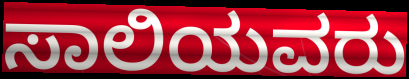
ಸಾಲಿಯವರು